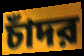
চাঁদর